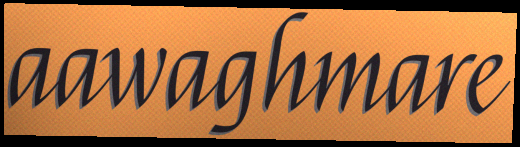
aawaghmare